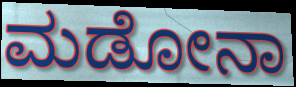
ಮಡೋನಾ